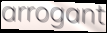
arrogant